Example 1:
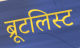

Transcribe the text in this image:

ब्रूटलिस्ट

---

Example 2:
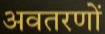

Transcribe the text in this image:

अवतरणों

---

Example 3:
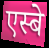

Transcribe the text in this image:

एस्बे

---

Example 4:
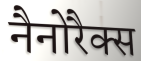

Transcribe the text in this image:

नैनोरैक्स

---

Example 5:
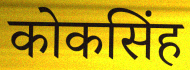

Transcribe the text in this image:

कोकसिंह